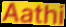
Aathi